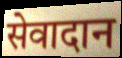
सेवादान